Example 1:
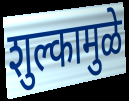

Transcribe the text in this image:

शुल्कामुळे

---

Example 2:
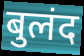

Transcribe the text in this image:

बुलंद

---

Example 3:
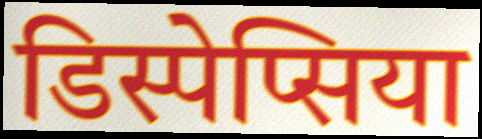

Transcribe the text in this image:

डिस्पेप्सिया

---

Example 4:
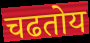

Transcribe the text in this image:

चढतोय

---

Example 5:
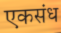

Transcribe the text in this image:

एकसंध